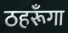
ठहरूँगा